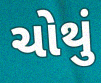
ચોથું